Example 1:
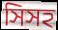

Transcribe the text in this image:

সিসহ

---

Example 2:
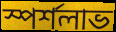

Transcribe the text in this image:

স্পর্শলাভ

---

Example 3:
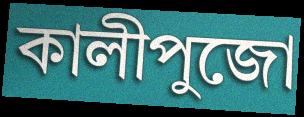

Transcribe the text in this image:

কালীপুজো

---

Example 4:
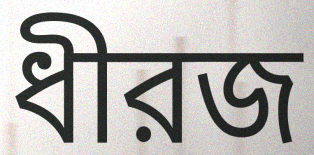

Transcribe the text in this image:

ধীরজ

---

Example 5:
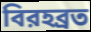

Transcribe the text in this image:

বিরহব্রত